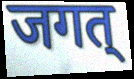
जगत्